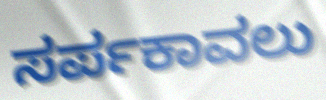
ಸರ್ಪಕಾವಲು